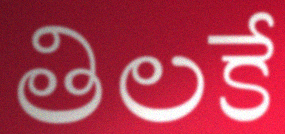
తిలకే